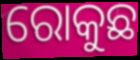
ରୋକୁଛ